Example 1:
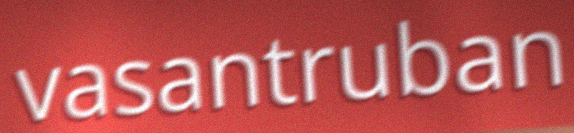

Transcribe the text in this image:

vasantruban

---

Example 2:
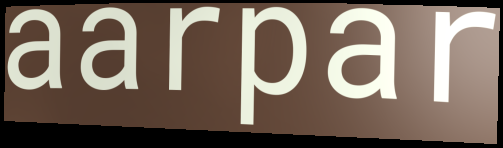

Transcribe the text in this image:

aarpar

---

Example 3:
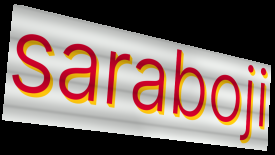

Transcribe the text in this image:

saraboji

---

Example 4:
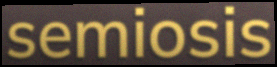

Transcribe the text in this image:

semiosis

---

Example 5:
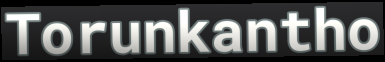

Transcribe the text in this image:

Torunkantho